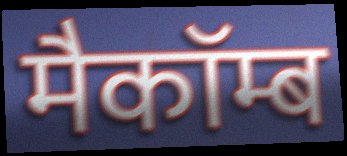
मैकॉम्ब